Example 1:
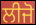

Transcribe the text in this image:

ਲੀਜੋ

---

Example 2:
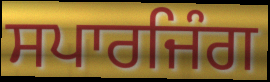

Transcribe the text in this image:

ਸਪਾਰਜਿੰਗ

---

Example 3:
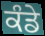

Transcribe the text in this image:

ਕੰਡੇ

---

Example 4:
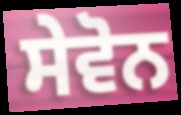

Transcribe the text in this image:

ਸੇਵੋਨ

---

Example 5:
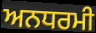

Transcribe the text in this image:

ਅਨਧਰਮੀ